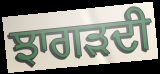
ਝਾਗੜਦੀ